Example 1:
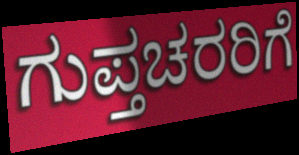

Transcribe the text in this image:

ಗುಪ್ತಚರರಿಗೆ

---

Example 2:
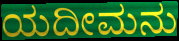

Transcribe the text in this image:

ಯದೀಮನು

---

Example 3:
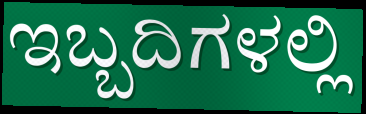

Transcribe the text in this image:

ಇಬ್ಬದಿಗಳಲ್ಲಿ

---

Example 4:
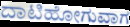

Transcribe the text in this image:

ದಾಟಿಹೋಗುವಾಗ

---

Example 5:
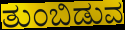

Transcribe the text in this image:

ತುಂಬಿಡುವ